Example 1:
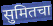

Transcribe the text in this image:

सुमितचा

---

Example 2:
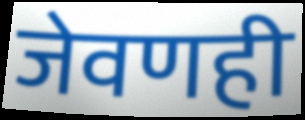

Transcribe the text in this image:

जेवणही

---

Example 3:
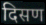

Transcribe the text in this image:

दिसण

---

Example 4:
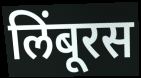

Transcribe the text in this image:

लिंबूरस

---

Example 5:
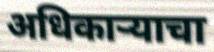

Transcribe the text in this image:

अधिकार्‍याचा